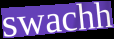
swachh